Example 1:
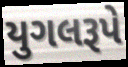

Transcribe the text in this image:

યુગલરૂપે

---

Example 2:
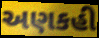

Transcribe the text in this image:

અણકહી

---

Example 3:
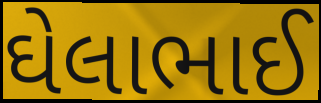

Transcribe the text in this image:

ઘેલાભાઈ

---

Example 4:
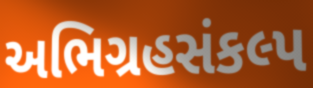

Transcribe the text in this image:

અભિગ્રહસંકલ્પ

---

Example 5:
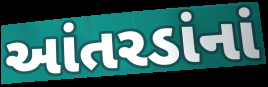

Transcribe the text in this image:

આંતરડાંનાં